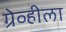
ग्रेव्हीला